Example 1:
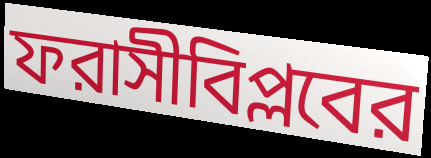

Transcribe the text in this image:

ফরাসীবিপ্লবের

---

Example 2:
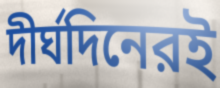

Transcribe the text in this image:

দীর্ঘদিনেরই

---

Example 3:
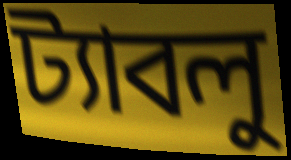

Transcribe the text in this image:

ট্যাবলু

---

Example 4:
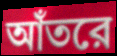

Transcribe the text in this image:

আঁতরে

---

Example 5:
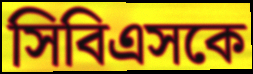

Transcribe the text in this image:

সিবিএসকে